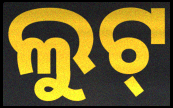
ଲୁଟ୍